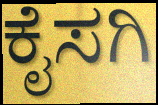
ಕೈಸಗಿ